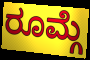
ರೂಮ್ಗೆ